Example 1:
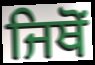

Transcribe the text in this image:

ਜਿਥੋਂ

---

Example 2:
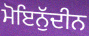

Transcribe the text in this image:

ਮੋਇਨੁੱਦੀਨ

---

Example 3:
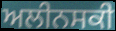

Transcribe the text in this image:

ਅਲੀਨਸਕੀ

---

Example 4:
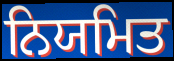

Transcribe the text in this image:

ਨਿਯਮਿਤ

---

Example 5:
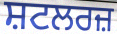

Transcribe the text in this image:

ਸ਼ਟਲਰਜ਼